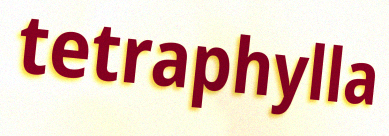
tetraphylla